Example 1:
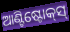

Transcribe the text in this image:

ଆଣ୍ଟିଷ୍ଟୋକ୍‍ସ୍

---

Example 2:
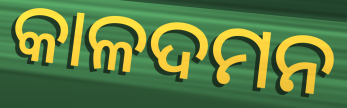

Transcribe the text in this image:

କାଳଦମନ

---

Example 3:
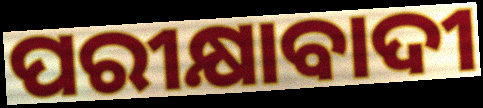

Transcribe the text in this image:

ପରୀକ୍ଷାବାଦୀ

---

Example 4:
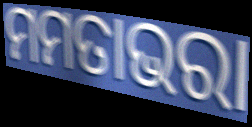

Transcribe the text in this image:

ମମତାଭରା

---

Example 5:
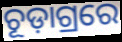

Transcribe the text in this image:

ଚୂଡ଼ାଗ୍ରରେ